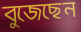
বুজেছেন